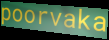
poorvaka